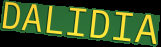
DALIDIA